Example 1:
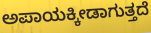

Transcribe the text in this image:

ಅಪಾಯಕ್ಕೀಡಾಗುತ್ತದೆ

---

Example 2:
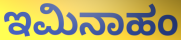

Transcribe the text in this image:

ಇಮಿನಾಹಂ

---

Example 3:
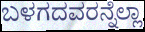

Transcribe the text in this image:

ಬಳಗದವರನ್ನೆಲ್ಲಾ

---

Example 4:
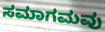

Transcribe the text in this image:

ಸಮಾಗಮವು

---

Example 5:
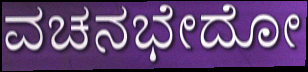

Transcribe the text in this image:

ವಚನಭೇದೋ